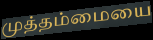
முத்தம்மையை